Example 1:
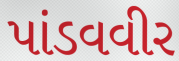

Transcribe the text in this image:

પાંડવવીર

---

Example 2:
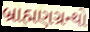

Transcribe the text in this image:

બ્રાહ્મણગ્રન્થો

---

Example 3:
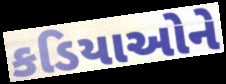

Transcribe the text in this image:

કડિયાઓને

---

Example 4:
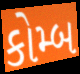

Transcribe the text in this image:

કોમ્બ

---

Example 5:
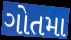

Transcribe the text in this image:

ગોતમા